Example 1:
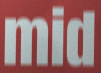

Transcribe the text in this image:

mid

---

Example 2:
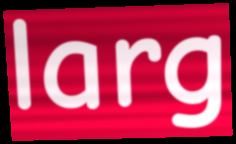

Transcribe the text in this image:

larg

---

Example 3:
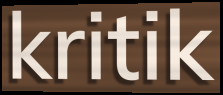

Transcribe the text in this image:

kritik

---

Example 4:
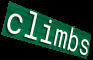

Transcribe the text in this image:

climbs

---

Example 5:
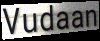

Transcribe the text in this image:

Vudaan